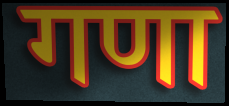
गणा